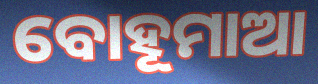
ବୋହୂମାଆ